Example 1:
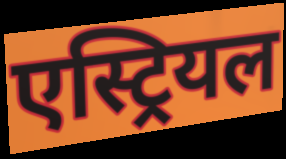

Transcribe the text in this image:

एस्ट्रियल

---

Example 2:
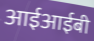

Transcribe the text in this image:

आईआईबी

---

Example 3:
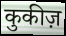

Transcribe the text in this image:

कुकीज़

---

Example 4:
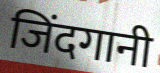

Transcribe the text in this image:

जिंदगानी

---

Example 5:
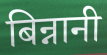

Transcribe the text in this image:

बिन्नानी